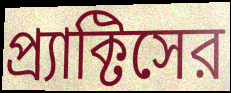
প্র্যাক্টিসের